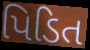
પિડિત